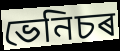
ভেনিচৰ